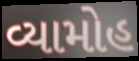
વ્યામોહ